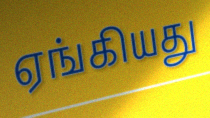
ஏங்கியது